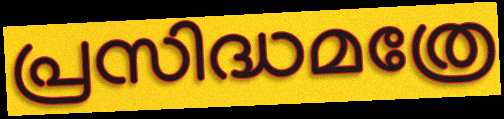
പ്രസിദ്ധമത്രേ